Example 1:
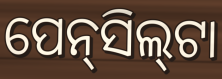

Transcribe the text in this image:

ପେନ୍‌ସିଲ୍‍ଟା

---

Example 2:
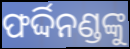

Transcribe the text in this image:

ଫର୍ଦ୍ଦିନଣ୍ଡଙ୍କୁ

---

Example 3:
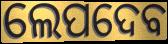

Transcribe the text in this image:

ଲେପଦେବ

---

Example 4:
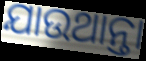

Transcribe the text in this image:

ଯାଉଥାନ୍ତା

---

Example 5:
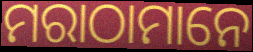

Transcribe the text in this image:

ମରାଠାମାନେ